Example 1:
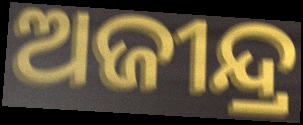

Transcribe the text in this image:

ଅଜୀନ୍ଦ୍ର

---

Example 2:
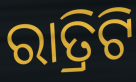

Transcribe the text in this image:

ରାତ୍ରିଟି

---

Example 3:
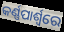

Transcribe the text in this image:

କର୍ଣ୍ଣପାର୍ଶ୍ୱରେ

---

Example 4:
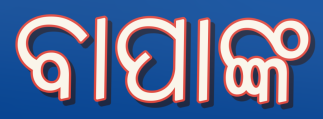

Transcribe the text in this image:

ବାପାଙ୍କ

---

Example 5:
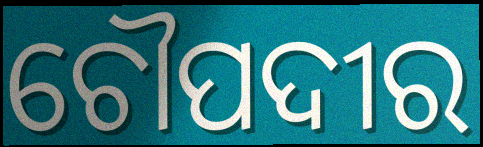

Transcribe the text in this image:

ଚୌପଦୀର